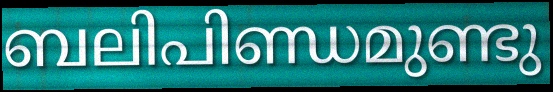
ബലിപിണ്ഡമുണ്ടു